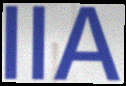
IIA